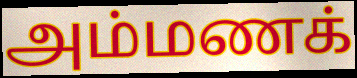
அம்மணக்